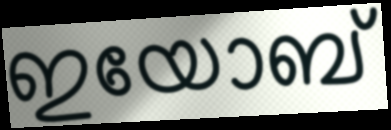
ഇയോബ്